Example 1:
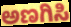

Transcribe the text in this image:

ಅಣಗಿಸಿ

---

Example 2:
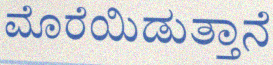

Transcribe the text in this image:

ಮೊರೆಯಿಡುತ್ತಾನೆ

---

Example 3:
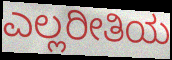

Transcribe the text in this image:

ಎಲ್ಲರೀತಿಯ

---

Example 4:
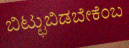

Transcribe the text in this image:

ಬಿಟ್ಟುಬಿಡಬೇಕೆಂಬ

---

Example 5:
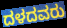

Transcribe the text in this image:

ದಳದವರು